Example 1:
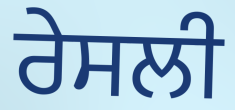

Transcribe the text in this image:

ਰੇਸਲੀ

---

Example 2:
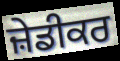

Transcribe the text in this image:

ਜ਼ੇਡੀਕਰ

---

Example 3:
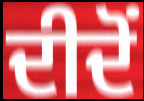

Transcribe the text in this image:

ਦੀਦੋਂ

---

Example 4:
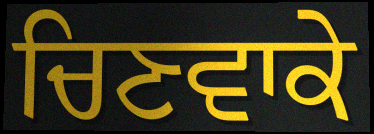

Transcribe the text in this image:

ਚਿਣਵਾਕੇ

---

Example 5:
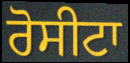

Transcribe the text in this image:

ਰੋਸੀਟਾ